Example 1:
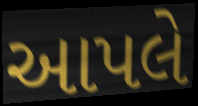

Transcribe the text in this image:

આપલે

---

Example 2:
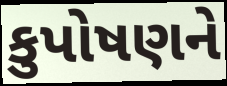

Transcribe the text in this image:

કુપોષણને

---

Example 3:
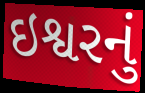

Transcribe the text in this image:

ઇશ્વરનું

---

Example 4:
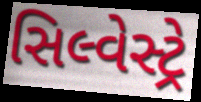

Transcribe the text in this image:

સિલ્વેસ્ટ્રે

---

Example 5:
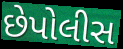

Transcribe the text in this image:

છેપોલીસ